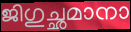
ജിഗുച്ഛമാനാ